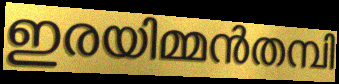
ഇരയിമ്മൻതമ്പി